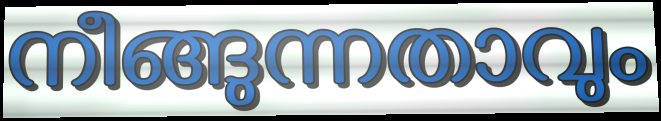
നീങ്ങുന്നതാവും